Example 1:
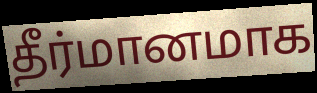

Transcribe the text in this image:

தீர்மானமாக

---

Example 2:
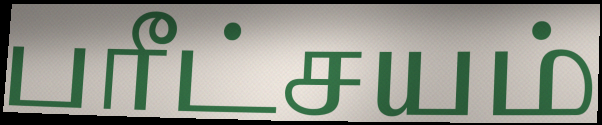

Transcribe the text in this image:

பரீட்சயம்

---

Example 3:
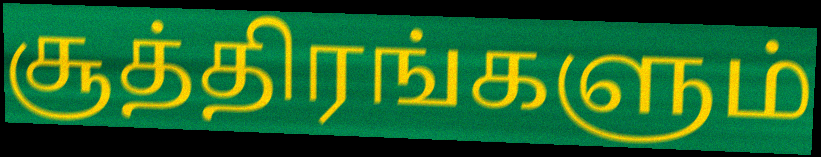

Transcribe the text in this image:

சூத்திரங்களும்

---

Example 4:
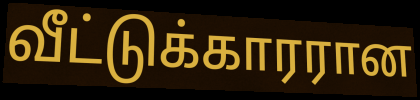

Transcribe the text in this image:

வீட்டுக்காரரான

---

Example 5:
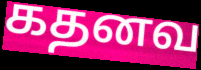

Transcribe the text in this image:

கதனவ